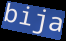
bija